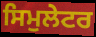
ਸਿਮੁਲੇਟਰ